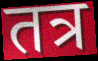
तत्र